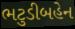
ભટુડીબહેન